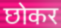
छोकर